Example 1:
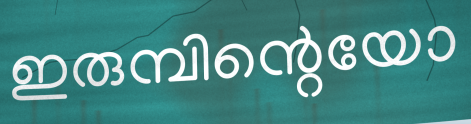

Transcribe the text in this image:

ഇരുമ്പിന്റെയോ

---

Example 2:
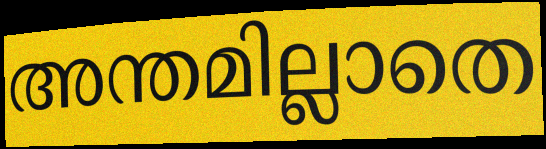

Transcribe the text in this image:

അന്തമില്ലാതെ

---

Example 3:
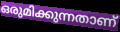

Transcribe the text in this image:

ഒരുമിക്കുന്നതാണ്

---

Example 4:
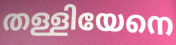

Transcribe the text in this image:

തള്ളിയേനെ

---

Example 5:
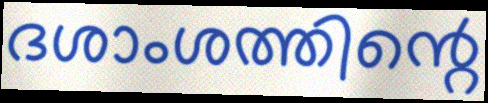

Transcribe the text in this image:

ദശാംശത്തിന്റെ